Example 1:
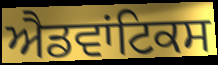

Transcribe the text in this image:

ਐਡਵਾਂਟਿਕਸ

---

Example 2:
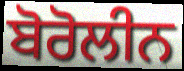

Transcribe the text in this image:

ਬੋਰੋਲੀਨ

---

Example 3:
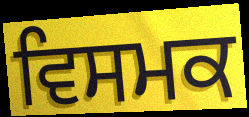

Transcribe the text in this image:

ਵਿਸਮਕ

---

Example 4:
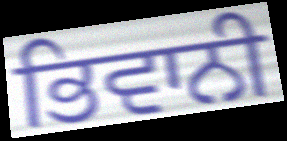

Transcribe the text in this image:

ਭਿਵਾਨੀ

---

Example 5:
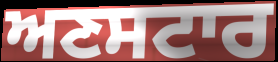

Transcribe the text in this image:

ਅਣਸਟਾਰ